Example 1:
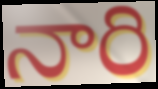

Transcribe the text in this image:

నారి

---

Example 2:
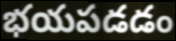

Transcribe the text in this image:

భయపడడం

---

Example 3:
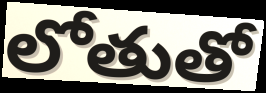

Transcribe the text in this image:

లోతుతో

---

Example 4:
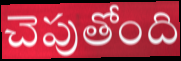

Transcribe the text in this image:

చెపుతోంది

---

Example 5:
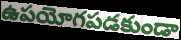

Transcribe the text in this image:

ఉపయోగపడకుండా